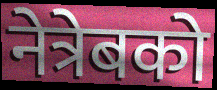
नेत्रेबको